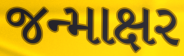
જન્માક્ષર